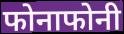
फोनाफोनी